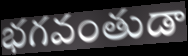
భగవంతుడా